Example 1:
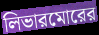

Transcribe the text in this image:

লিভারমোরের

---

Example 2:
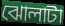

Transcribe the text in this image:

ঝোলাটা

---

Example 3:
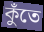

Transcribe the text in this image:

কুঁতে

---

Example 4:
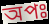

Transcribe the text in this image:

অপঃ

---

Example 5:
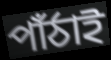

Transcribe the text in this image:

পাঁঠাই